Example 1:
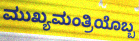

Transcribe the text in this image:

ಮುಖ್ಯಮಂತ್ರಿಯೊಬ್ಬ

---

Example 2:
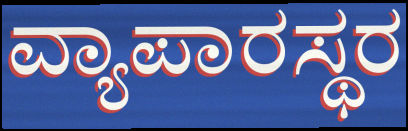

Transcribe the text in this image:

ವ್ಯಾಪಾರಸ್ಥರ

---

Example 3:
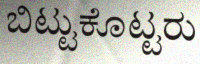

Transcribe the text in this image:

ಬಿಟ್ಟುಕೊಟ್ಟರು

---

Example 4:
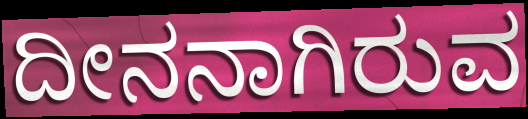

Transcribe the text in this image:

ದೀನನಾಗಿರುವ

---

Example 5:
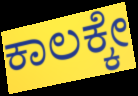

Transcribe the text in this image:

ಕಾಲಕ್ಕೇ